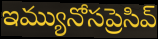
ఇమ్యునోసప్రెసివ్